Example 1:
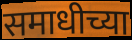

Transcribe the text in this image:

समाधीच्या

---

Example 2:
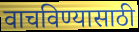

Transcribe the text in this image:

वाचविण्यासाठी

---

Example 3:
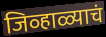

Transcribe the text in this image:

जिव्हाळ्याचं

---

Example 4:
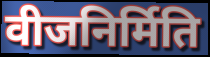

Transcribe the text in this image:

वीजनिर्मिति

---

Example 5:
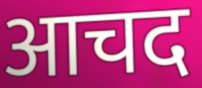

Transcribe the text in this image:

आचद